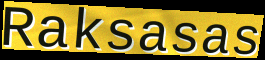
Raksasas